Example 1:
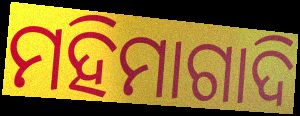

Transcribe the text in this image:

ମହିମାଗାଦି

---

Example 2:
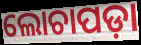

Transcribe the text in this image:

ଲୋଚାପଡ଼ା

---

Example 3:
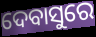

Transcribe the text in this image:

ଦେବାସୁରେ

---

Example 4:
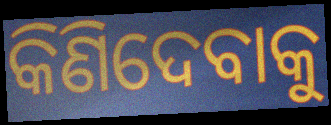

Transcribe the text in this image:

କିଣିଦେବାକୁ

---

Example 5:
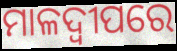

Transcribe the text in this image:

ମାଳଦ୍ବୀପରେ